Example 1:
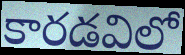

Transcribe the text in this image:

కారడవిలో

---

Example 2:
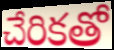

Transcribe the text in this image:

చేరికతో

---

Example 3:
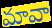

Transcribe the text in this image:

మావా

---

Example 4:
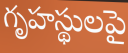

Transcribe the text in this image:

గృహస్థులపై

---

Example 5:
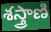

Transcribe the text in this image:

శస్త్రాణి